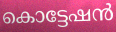
കൊട്ടേഷൻ